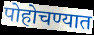
पोहोचण्यात